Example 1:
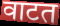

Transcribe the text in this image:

वाटत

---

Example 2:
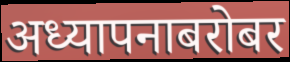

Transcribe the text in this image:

अध्यापनाबरोबर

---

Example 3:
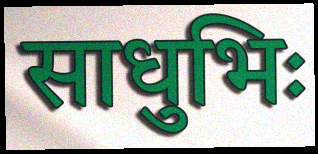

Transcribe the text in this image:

साधुभिः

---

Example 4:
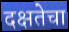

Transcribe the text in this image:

दक्षतेचा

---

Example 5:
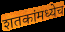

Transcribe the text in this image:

शतकांमध्येच